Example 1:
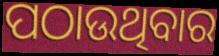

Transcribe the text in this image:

ପଠାଉଥିବାର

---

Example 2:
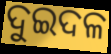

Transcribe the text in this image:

ଦୁଇଦଳ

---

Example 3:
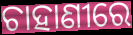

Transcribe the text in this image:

ଚାହାଣୀରେ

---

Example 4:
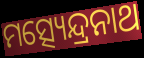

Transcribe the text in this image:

ମତ୍ସ୍ୟେନ୍ଦ୍ରନାଥ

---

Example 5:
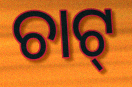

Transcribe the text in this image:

ଚାଟ୍